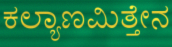
ಕಲ್ಯಾಣಮಿತ್ತೇನ